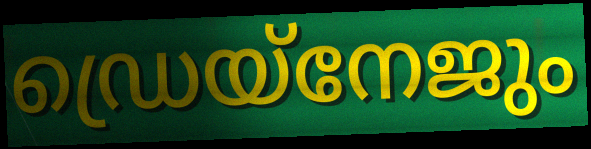
ഡ്രെയ്നേജും